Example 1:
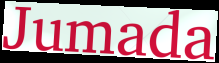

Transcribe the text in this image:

Jumada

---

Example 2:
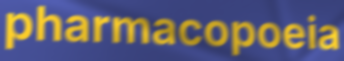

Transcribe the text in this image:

pharmacopoeia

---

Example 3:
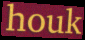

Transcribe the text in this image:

houk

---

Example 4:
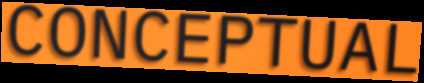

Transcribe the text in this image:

CONCEPTUAL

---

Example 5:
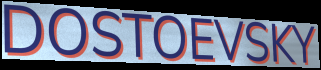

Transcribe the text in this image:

DOSTOEVSKY